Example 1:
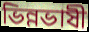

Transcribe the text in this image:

ভিন্নভাষী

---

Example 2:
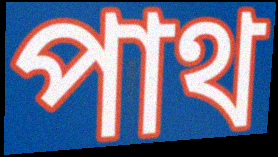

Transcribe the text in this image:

পাথ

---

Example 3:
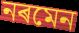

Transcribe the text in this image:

নৰমেন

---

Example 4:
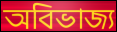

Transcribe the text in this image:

অবিভাজ্য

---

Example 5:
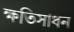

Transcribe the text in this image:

ক্ষতিসাধন